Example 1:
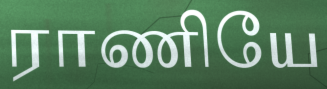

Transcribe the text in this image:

ராணியே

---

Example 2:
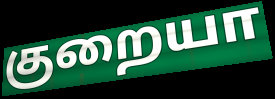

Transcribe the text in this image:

குறையா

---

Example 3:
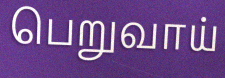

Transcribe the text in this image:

பெறுவாய்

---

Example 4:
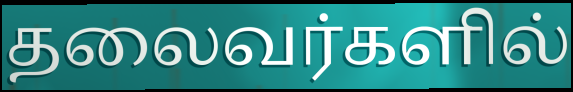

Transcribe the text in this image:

தலைவர்களில்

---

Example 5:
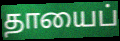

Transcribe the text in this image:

தாயைப்